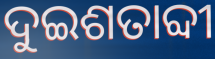
ଦୁଇଶତାବ୍ଦୀ